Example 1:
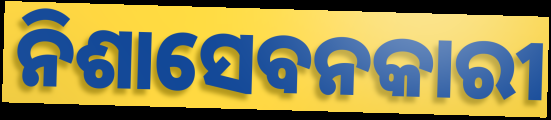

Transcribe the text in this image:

ନିଶାସେବନକାରୀ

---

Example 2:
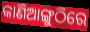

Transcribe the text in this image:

କାଣିଆଙ୍ଗୁଠିରେ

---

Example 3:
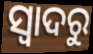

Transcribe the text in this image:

ସ୍ୱାଦରୁ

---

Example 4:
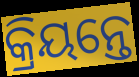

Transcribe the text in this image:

କ୍ରିୟନ୍ତେ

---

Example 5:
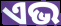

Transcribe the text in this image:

ଏଭ